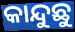
କାନ୍ଦୁଛୁ